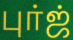
புர்ஜ்